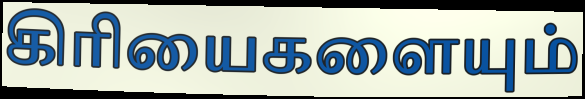
கிரியைகளையும்